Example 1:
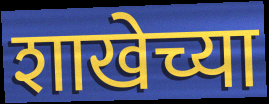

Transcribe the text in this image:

शाखेच्या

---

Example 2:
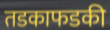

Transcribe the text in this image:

तडकाफडकी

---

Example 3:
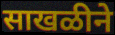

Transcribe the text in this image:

साखळीने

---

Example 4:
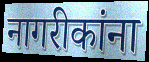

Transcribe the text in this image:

नागरीकांना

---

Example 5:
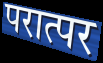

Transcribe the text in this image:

परात्पर